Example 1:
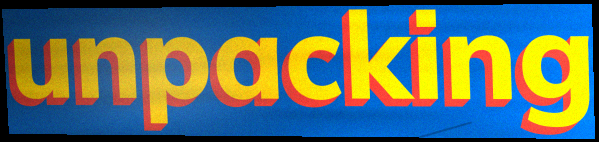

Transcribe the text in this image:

unpacking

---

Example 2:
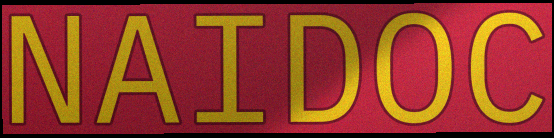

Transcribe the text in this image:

NAIDOC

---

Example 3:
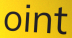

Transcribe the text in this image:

oint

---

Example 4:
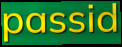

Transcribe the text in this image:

passid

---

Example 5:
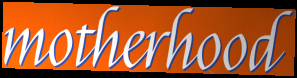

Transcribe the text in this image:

motherhood